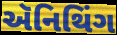
ઍનિથિંગ